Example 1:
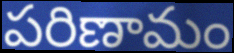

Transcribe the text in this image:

పరిణామం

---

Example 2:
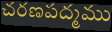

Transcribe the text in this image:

చరణపద్మము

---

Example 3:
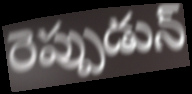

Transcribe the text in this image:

రెప్పుడున్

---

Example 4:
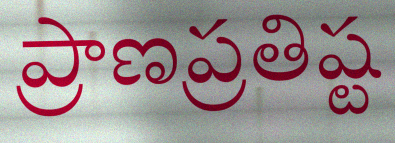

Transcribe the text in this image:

ప్రాణప్రతిష్ట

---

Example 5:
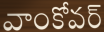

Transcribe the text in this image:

వాంకోవర్